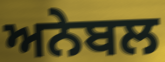
ਅਨੇਬਲ